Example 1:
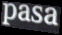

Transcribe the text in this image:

pasa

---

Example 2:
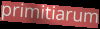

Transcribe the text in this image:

primitiarum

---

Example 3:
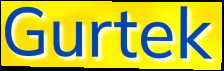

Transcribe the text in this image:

Gurtek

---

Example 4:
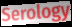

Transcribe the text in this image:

Serology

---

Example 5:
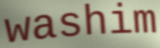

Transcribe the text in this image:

washim